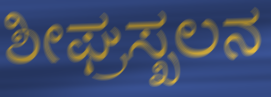
ಶೀಘ್ರಸ್ಖಲನ